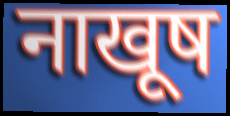
नाखूष